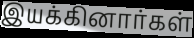
இயக்கினார்கள்